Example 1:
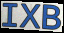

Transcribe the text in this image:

IXB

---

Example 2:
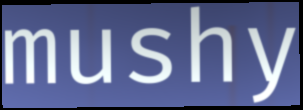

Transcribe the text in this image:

mushy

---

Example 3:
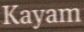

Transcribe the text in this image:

Kayam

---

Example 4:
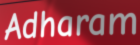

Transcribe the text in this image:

Adharam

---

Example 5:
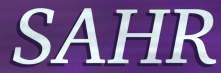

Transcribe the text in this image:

SAHR